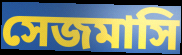
সেজমাসি